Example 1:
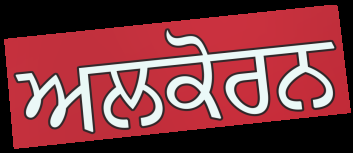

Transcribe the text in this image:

ਅਲਕੋਰਨ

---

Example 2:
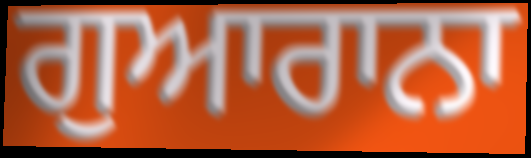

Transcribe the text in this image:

ਗੁਆਰਾਨਾ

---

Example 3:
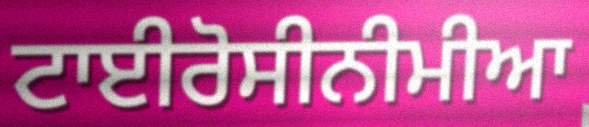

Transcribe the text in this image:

ਟਾਈਰੋਸੀਨੀਮੀਆ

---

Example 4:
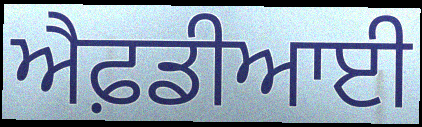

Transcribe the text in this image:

ਐਫ਼ਡੀਆਈ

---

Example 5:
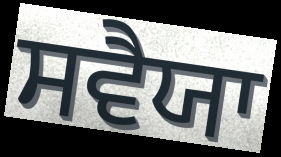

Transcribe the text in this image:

ਸਵੈਯਾ